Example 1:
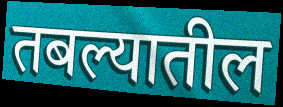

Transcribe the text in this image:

तबल्यातील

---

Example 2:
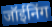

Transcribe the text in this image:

जॉईनिंग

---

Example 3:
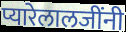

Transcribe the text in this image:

प्यारेलालजींनी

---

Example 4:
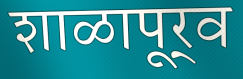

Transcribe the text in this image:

शाळापूर्व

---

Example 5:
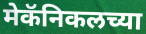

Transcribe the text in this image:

मेकॅनिकलच्या